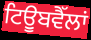
ਟਿਊੁਬਵੈੱਲਾਂ